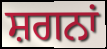
ਸ਼ਗਨਾਂ